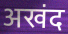
अखंद